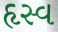
હૃસ્વ